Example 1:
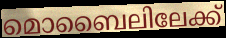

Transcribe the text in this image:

മൊബൈലിലേക്ക്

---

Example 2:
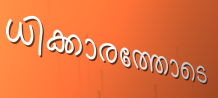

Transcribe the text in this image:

ധിക്കാരത്തോടെ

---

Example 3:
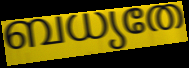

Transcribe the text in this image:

ബധ്യതേ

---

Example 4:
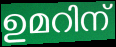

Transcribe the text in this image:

ഉമറിന്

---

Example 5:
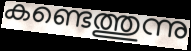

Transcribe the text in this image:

കണ്ടെത്തുന്നു